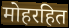
मोहरहित